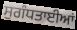
ਸੁਗੰਧਤਾਈਆਂ